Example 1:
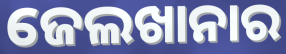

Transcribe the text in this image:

ଜେଲଖାନାର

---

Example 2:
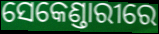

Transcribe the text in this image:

ସେକେଣ୍ଡାରୀରେ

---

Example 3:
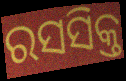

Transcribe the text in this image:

ରସସିକ୍ତ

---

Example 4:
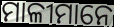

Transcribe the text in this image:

ମାଳୀମାନେ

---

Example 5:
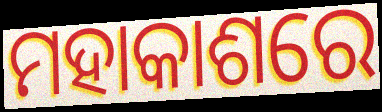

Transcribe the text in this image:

ମହାକାଶରେ